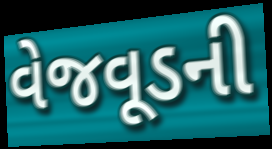
વેજવૂડની